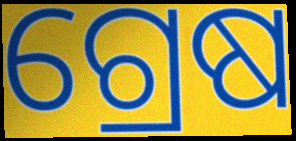
ଗ୍ରେଷ